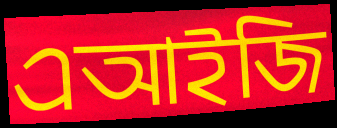
এআইজি